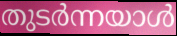
തുടർന്നയാൾ